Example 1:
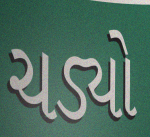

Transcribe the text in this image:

ચડ્યો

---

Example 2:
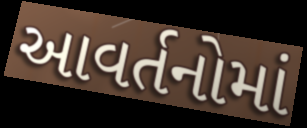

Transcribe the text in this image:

આવર્તનોમાં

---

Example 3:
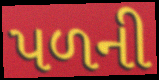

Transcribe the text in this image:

પળની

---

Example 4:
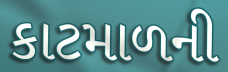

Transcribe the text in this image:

કાટમાળની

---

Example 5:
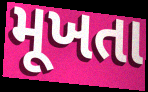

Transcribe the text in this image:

મૂખતા